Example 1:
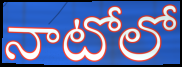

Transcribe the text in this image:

నాటోలో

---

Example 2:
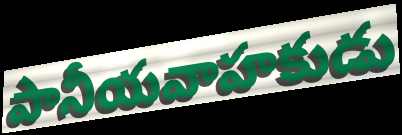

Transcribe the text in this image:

పానీయవాహకుడు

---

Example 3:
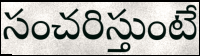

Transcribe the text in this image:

సంచరిస్తుంటే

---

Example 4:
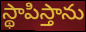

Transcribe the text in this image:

స్థాపిస్తాను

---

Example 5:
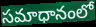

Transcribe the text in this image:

సమాధానంలో